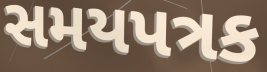
સમયપત્રક